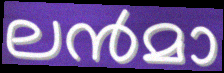
ലൻമാ